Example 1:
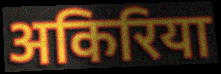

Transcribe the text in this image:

अकिरिया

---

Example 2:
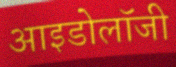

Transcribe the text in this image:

आइडोलॉजी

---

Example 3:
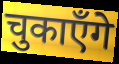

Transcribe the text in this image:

चुकाएँगे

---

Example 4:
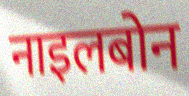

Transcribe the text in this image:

नाइलबोन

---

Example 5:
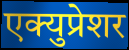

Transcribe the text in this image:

एक्युप्रेशर